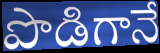
పొడిగానే